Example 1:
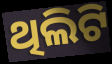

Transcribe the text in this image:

ଥିଲିଟି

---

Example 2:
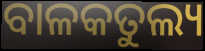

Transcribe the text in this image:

ବାଳକତୁଲ୍ୟ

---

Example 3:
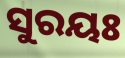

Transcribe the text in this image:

ସୁରୟଃ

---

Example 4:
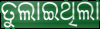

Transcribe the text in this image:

ତୁଲାଇଥିଲା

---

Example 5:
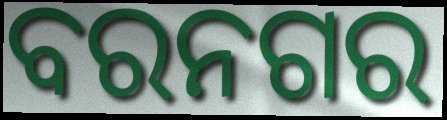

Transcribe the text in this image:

ବରନଗର